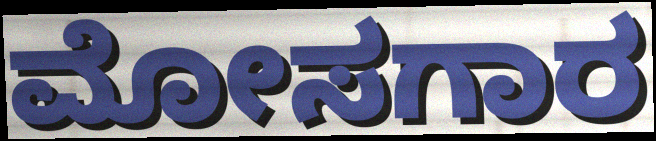
ಮೋಸಗಾರ